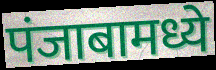
पंजाबामध्ये